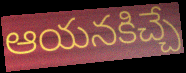
ఆయనకిచ్చే